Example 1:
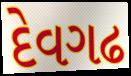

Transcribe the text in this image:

દેવગઢ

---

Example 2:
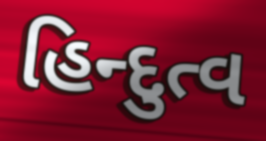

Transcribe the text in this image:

હિન્દુત્વ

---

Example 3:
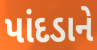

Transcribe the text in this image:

પાંદડાને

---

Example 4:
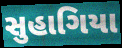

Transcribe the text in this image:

સુહાગિયા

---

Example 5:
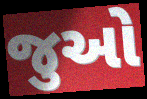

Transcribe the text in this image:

જુઓ